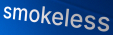
smokeless